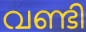
വണ്ടി